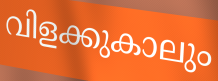
വിളക്കുകാലും